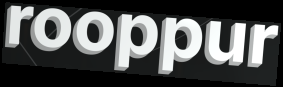
rooppur